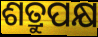
ଶତ୍ରୁପକ୍ଷ